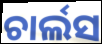
ଚାର୍ଲସ